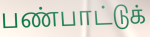
பண்பாட்டுக்